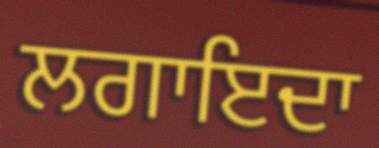
ਲਗਾਇਦਾ